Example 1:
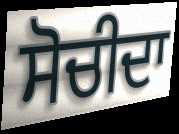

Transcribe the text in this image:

ਸੋਚੀਦਾ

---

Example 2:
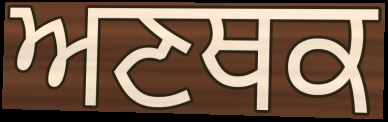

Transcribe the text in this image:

ਅਣਥਕ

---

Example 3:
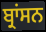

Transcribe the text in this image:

ਬ੍ਰਾਂਸਨ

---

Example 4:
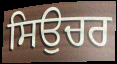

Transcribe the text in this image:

ਸਿਉਚਰ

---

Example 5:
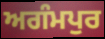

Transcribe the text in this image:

ਅਗੰਮਪੁਰ